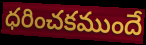
ధరించకముందే